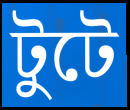
টুটে